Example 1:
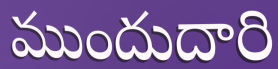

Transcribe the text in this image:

ముందుదారి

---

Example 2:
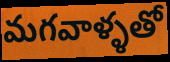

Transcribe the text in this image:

మగవాళ్ళతో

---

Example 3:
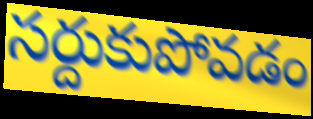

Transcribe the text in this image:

సర్దుకుపోవడం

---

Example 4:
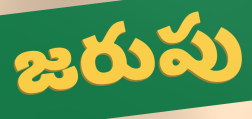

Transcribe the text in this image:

జరుపు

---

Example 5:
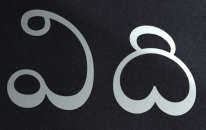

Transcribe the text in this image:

విది